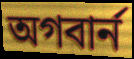
অগবার্ন